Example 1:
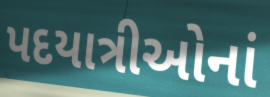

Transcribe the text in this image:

પદયાત્રીઓનાં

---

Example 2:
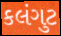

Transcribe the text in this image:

કલંગુટ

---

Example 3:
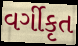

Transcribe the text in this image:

વર્ગીકૃત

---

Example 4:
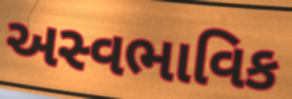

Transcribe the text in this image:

અસ્વભાવિક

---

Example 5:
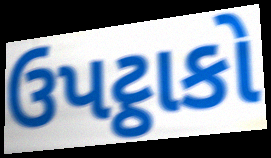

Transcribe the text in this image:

ઉપટ્ઠાકો